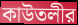
কাউতলীর